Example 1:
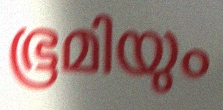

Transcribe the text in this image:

ഭൂമിയും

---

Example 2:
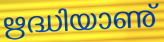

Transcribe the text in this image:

ഋദ്ധിയാണു്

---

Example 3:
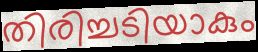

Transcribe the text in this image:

തിരിച്ചടിയാകും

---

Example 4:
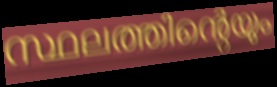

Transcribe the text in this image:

സ്ഥലത്തിന്റെയും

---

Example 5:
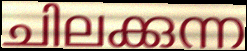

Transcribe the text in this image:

ചിലക്കുന്ന